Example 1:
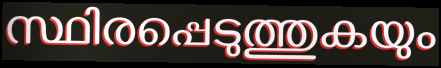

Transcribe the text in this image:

സ്ഥിരപ്പെടുത്തുകയും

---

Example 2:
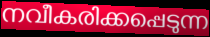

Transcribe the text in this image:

നവീകരിക്കപ്പെടുന്ന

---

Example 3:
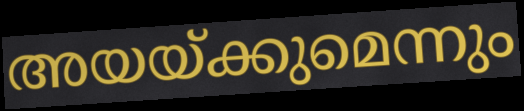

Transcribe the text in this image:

അയയ്ക്കുമെന്നും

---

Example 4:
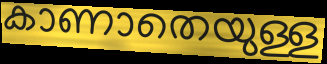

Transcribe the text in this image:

കാണാതെയുള്ള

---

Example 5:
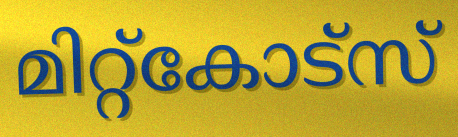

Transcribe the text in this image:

മിറ്റ്കോട്സ്